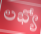
లభ్యో